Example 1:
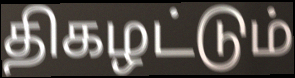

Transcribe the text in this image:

திகழட்டும்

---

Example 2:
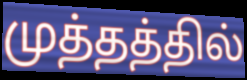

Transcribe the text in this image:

முத்தத்தில்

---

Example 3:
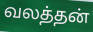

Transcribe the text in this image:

வலத்தன்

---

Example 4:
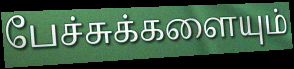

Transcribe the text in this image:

பேச்சுக்களையும்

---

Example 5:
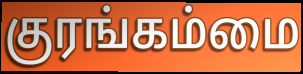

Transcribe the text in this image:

குரங்கம்மை